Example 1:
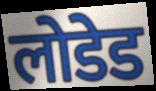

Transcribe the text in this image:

लोडेड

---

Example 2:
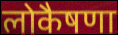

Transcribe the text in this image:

लोकैषणा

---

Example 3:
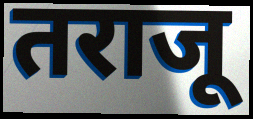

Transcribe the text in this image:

तराजू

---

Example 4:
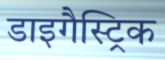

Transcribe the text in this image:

डाइगैस्ट्रिक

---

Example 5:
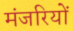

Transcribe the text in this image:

मंजरियों